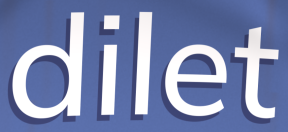
dilet